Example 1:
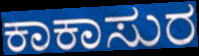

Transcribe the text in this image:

ಕಾಕಾಸುರ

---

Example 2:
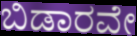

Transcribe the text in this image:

ಬಿಡಾರವೇ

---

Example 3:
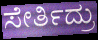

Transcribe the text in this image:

ಸೇರ್ತಿದ್ರು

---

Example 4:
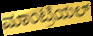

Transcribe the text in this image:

ಮಾಂಟ್ರಿಯಲ್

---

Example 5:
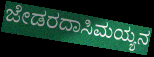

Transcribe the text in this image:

ಜೇಡರದಾಸಿಮಯ್ಯನ